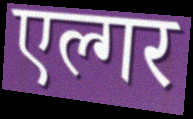
एल्गर